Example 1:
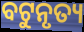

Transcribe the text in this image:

ବଟୁନୃତ୍ୟ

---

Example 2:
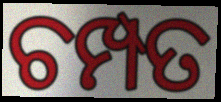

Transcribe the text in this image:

ଚମ୍ପତ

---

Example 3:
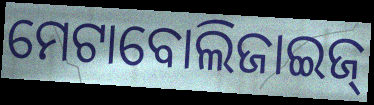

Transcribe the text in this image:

ମେଟାବୋଲିଜାଇଜ୍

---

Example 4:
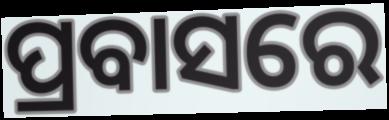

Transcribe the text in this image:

ପ୍ରବାସରେ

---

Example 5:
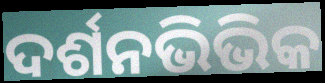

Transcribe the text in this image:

ଦର୍ଶନଭିଭିକ